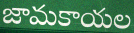
జామకాయల